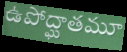
ఉపోద్ఘాతమూ